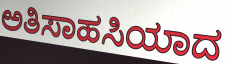
ಅತಿಸಾಹಸಿಯಾದ